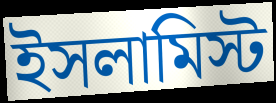
ইসলামিস্ট